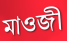
মাওজী